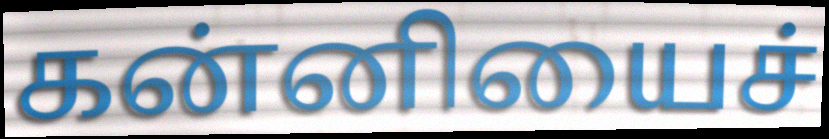
கன்னியைச்